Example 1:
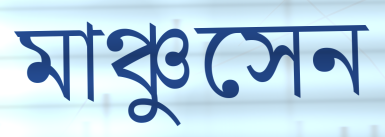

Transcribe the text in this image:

মাঞ্চুসেন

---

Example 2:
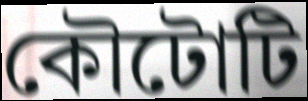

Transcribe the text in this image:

কৌটোটি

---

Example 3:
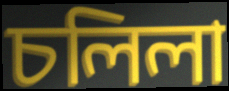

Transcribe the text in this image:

চলিলা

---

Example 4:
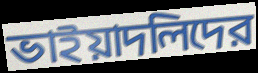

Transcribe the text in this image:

ভাইয়াদলিদের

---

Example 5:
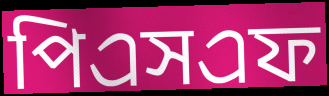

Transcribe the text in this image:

পিএসএফ